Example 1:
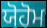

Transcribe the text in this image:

ਯੋਹੋਮ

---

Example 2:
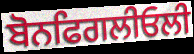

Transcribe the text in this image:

ਬੋਨਫਿਗਲੀਓਲੀ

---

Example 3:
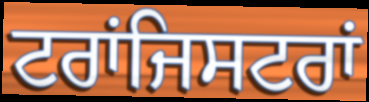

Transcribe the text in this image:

ਟਰਾਂਜਿਸਟਰਾਂ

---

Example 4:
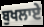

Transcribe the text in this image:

ਬੁਖਲਾਏ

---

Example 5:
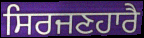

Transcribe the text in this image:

ਸਿਰਜਣਹਾਰੈ